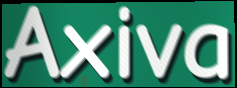
Axiva